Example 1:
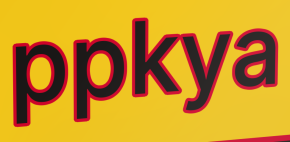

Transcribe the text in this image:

ppkya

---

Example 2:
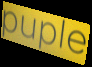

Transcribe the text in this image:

puple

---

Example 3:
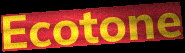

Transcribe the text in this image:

Ecotone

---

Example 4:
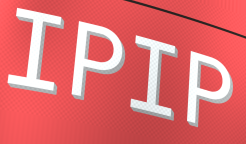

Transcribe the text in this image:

IPIP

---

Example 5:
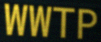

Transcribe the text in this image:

WWTP